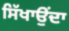
ਸਿੱਖਾਉਂਦਾ